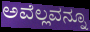
ಅವೆಲ್ಲವನ್ನೂ